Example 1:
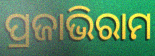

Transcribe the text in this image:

ପ୍ରଜାଭିରାମ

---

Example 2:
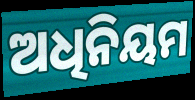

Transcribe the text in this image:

ଅଧିନିୟମ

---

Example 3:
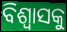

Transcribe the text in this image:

ବିଶ୍ୱାସକୁ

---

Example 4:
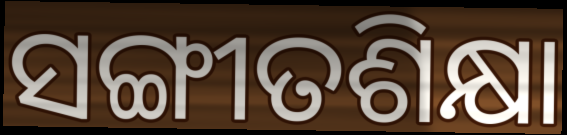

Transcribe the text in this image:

ସଙ୍ଗୀତଶିକ୍ଷା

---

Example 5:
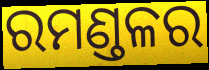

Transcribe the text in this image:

ରମଣ୍ଡଳର